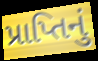
પ્રાપ્‍તિનું